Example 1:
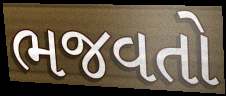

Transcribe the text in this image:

ભજવતો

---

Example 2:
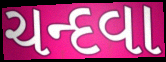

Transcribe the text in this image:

ચન્દવા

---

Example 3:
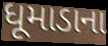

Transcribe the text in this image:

ધૂમાડાના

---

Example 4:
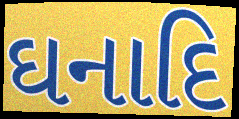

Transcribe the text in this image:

ઘનાદિ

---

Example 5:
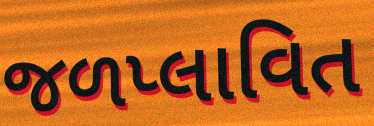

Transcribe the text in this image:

જળપ્લાવિત